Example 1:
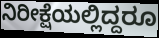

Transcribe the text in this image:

ನಿರೀಕ್ಷೆಯಲ್ಲಿದ್ದರೂ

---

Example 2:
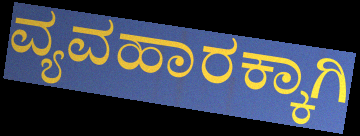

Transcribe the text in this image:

ವ್ಯವಹಾರಕ್ಕಾಗಿ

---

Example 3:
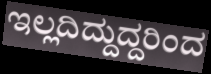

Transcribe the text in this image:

ಇಲ್ಲದಿದ್ದುದ್ದರಿಂದ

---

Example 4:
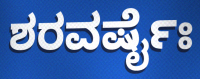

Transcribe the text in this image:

ಶರವರ್ಷೈಃ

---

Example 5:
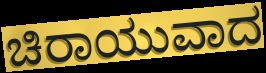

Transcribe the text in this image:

ಚಿರಾಯುವಾದ